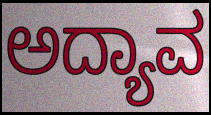
ಅದ್ಯಾವ